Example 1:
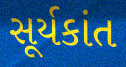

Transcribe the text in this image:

સૂર્યકાંત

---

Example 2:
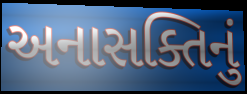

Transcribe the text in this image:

અનાસક્તિનું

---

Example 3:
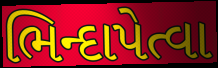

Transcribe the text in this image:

ભિન્દાપેત્વા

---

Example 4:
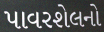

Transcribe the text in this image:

પાવરશેલનો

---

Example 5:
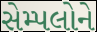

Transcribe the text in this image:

સેમ્પલોને